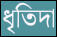
ধৃতিদা